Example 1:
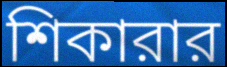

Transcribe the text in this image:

শিকারার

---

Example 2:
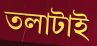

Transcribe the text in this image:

তলাটাই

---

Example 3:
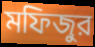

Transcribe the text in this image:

মফিজুর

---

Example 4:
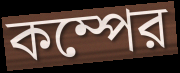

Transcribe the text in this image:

কম্পের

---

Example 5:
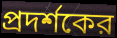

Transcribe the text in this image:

প্রদর্শকের